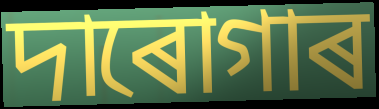
দাৰোগাৰ